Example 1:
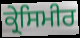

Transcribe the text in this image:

ਕ੍ਰੇਸਿਮੀਰ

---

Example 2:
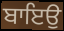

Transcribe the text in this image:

ਬਾਇਉ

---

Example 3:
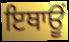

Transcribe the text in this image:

ਇਥਾਊਂ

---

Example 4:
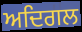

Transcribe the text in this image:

ਅਦਿਗਲ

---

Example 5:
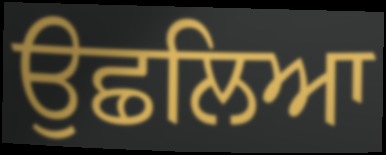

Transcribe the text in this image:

ਉਛਲਿਆ